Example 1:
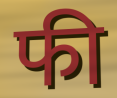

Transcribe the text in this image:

फी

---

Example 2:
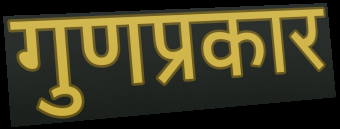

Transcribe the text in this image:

गुणप्रकार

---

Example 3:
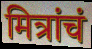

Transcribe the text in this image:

मित्रांचं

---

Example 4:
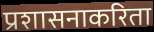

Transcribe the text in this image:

प्रशासनाकरिता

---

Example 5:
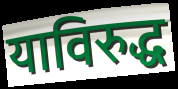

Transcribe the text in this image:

याविरुद्ध